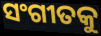
ସଂଗୀତକୁ